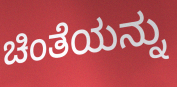
ಚಿಂತೆಯನ್ನು